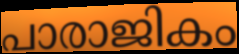
പാരാജികം